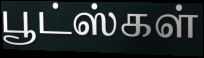
பூட்ஸ்கள்